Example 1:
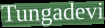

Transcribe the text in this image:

Tungadevi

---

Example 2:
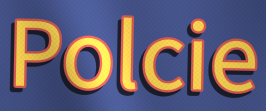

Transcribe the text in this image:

Polcie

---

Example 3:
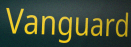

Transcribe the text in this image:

Vanguard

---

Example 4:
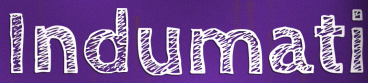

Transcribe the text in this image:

Indumati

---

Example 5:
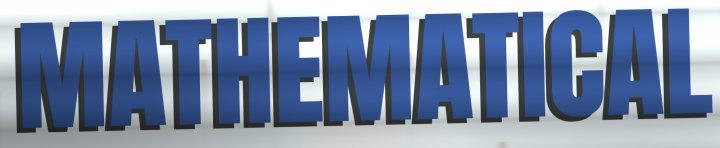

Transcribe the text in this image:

MATHEMATICAL